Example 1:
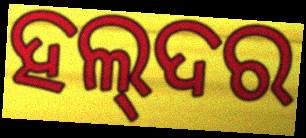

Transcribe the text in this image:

ହଲ୍‌ଦର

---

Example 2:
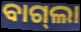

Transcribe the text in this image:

ବାଗ୍‌ଲା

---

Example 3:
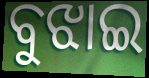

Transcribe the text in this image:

ବୁଝାଇ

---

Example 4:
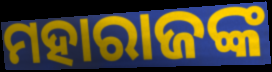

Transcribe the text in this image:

ମହାରାଜଙ୍କ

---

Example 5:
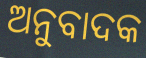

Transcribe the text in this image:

ଅନୁବାଦକ